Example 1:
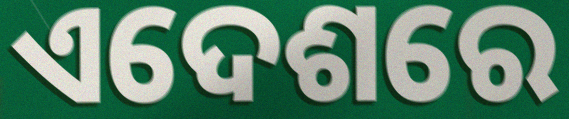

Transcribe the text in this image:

ଏଦେଶରେ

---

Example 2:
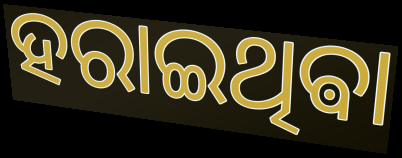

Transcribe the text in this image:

ହରାଇଥିଵା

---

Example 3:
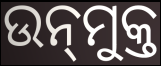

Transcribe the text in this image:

ଉନ୍‍ମୁକ୍ତ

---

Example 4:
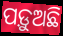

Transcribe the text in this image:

ପଡ଼ୁଅଛି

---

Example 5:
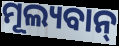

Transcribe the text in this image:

ମୂଲ୍ୟବାନ୍